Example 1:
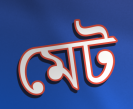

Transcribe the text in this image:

মেট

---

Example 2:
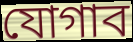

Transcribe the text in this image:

যোগাব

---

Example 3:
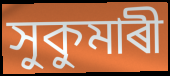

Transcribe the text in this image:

সুকুমাৰী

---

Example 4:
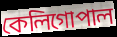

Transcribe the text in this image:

কেলিগোপাল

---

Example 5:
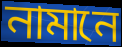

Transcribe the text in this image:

নামানে